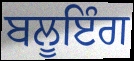
ਬਲੂਇੰਗ